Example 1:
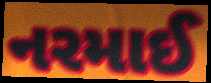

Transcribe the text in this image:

નરમાઈ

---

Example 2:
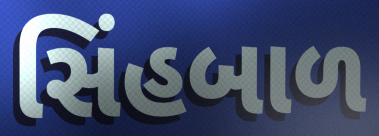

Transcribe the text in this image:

સિંહબાળ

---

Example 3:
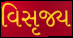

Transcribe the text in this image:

વિસૃજ્ય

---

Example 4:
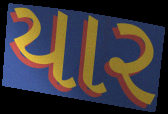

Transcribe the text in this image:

યાર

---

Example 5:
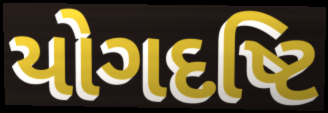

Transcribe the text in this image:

યોગદષ્ટિ